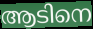
ആടിനെ